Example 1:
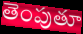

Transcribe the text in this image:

తెంపుతూ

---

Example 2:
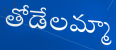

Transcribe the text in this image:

తోడేలమ్మా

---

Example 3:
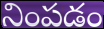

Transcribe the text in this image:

నింపడం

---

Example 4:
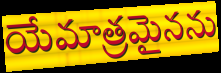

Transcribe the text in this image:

యేమాత్రమైనను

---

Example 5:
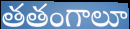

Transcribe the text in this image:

తతంగాలూ